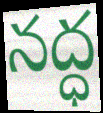
నద్ధ